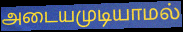
அடையமுடியாமல்